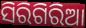
ସିରିଗିରିଆ